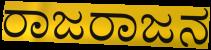
ರಾಜರಾಜನ